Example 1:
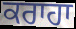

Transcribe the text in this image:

ਕਰਾਹਾ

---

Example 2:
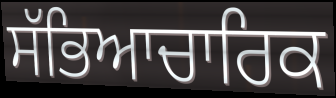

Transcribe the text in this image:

ਸੱਭਿਆਚਾਰਿਕ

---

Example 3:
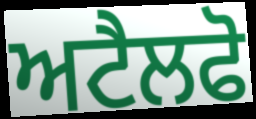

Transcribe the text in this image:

ਅਟੈਲਫੋ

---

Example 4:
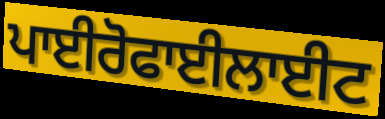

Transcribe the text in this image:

ਪਾਈਰੋਫਾਈਲਾਈਟ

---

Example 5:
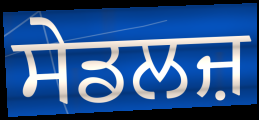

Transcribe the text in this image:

ਸੇਡਲਜ਼